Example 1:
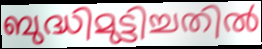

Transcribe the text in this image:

ബുദ്ധിമുട്ടിച്ചതിൽ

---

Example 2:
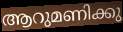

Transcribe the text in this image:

ആറുമണിക്കു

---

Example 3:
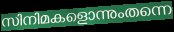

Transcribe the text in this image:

സിനിമകളൊന്നുംതന്നെ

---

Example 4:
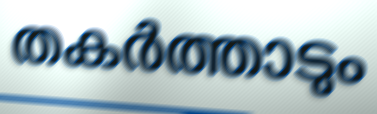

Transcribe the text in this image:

തകർത്താടും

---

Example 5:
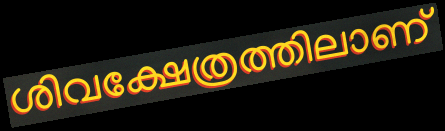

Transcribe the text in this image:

ശിവക്ഷേത്രത്തിലാണ്